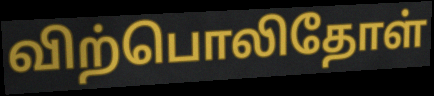
விற்பொலிதோள்